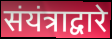
संयंत्राद्वारे